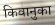
किवानुका